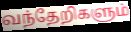
வந்தேறிகளும்